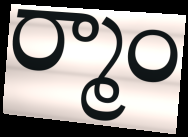
ర్మాం